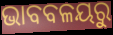
ଭାବବଳୟରୁ